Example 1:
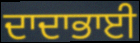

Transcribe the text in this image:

ਦਾਦਾਭਾਈ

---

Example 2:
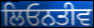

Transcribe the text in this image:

ਲਿਓਨਤੀਵ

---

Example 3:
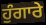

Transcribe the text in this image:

ਹੁੰਗਾਰੇ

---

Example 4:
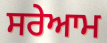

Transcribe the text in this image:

ਸਰੇਆਮ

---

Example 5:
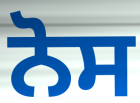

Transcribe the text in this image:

ਨੋਸ